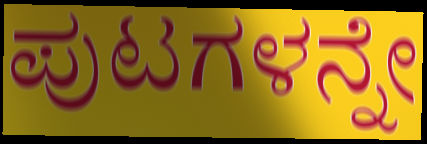
ಪುಟಗಳನ್ನೇ